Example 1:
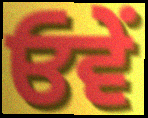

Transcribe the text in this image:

ਓਵੇਂ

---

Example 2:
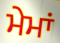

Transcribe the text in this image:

ਮੇਮਾਂ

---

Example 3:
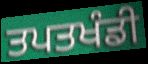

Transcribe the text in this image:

ਤਪਤਖੰਡੀ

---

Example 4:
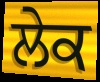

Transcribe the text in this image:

ਲੇਕ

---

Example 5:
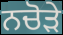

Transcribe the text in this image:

ਨਚੋੜੇ